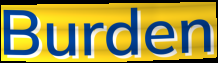
Burden